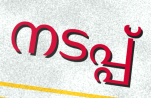
നടപ്പ്